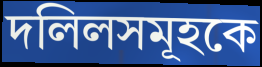
দলিলসমূহকে